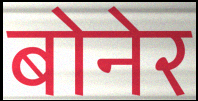
बोनेर